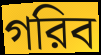
গরিব